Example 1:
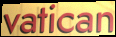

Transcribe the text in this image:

vatican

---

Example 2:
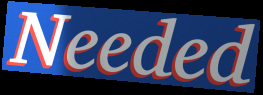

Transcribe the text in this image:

Needed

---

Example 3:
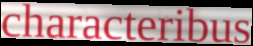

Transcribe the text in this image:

characteribus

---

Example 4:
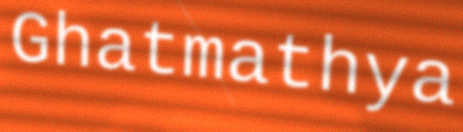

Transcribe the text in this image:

Ghatmathya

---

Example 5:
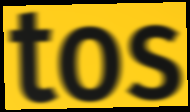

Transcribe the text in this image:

tos